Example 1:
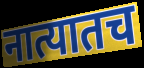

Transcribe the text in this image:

नात्यातच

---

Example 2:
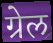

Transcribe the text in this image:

ग्रेल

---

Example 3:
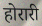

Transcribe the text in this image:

होरारी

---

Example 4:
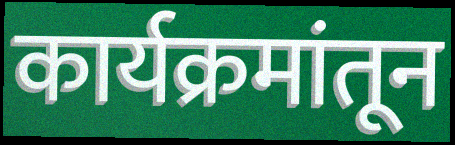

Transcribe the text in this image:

कार्यक्रमांतून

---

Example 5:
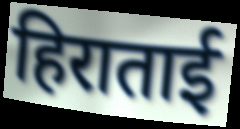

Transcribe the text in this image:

हिराताई